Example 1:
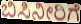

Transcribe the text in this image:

ಬಿಸಿನೀರಿಗೆ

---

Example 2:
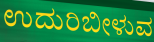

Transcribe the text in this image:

ಉದುರಿಬೀಳುವ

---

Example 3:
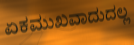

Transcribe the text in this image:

ಏಕಮುಖವಾದುದಲ್ಲ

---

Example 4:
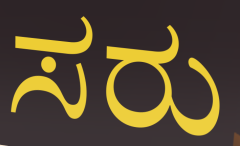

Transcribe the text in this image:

ಸರು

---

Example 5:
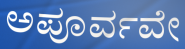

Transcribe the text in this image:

ಅಪೂರ್ವವೇ